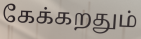
கேக்கறதும்